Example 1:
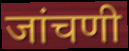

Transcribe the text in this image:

जांचणी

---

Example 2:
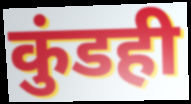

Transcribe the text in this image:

कुंडही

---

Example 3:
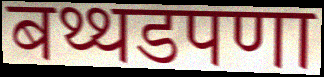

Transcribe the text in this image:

बथ्थडपणा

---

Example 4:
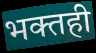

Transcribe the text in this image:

भक्तही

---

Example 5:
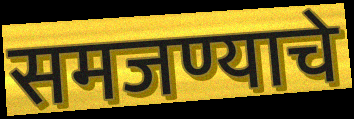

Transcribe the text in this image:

समजण्याचे